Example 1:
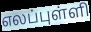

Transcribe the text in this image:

எலப்புள்ளி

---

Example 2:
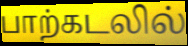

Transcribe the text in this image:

பாற்கடலில்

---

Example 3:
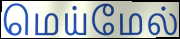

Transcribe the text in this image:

மெய்மேல்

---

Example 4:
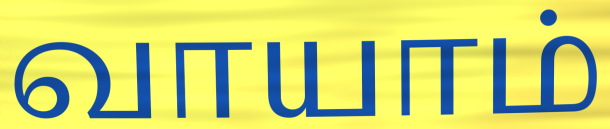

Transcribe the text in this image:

வாயாம்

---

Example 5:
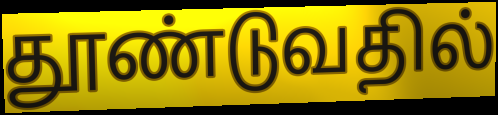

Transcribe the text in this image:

தூண்டுவதில்